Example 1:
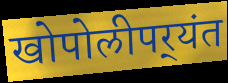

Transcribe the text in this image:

खोपोलीपर्यंत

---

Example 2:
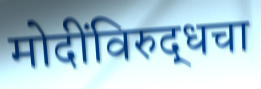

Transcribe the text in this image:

मोदींविरुद्धचा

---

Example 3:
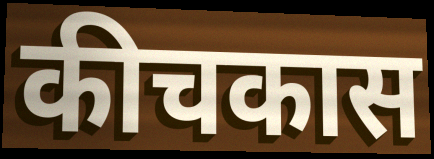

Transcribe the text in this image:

कीचकास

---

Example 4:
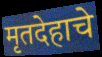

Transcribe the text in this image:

मृतदेहाचे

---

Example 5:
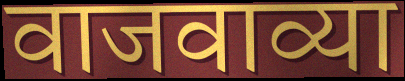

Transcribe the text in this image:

वाजवाव्या